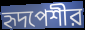
হৃদপেশীর